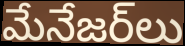
మేనేజర్‌లు